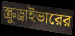
স্ক্রুড্রাইভারের